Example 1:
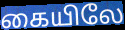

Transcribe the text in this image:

கையிலே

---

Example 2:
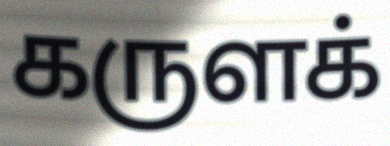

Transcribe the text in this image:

கருளக்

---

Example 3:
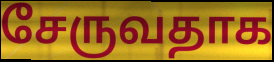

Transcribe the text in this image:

சேருவதாக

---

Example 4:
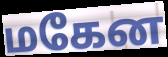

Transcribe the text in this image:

மகேன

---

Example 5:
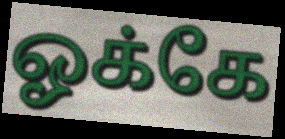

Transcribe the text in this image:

ஓக்கே